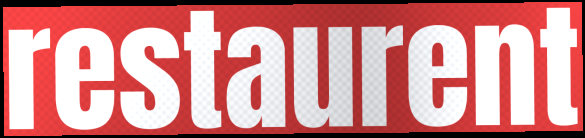
restaurent